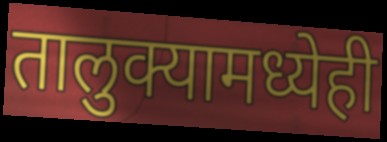
तालुक्यामध्येही